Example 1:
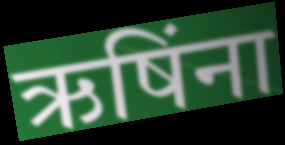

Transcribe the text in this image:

ऋषिंना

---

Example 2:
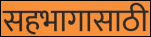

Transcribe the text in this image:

सहभागासाठी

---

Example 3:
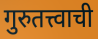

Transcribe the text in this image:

गुरुतत्त्वाची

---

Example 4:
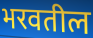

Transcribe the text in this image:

भरवतील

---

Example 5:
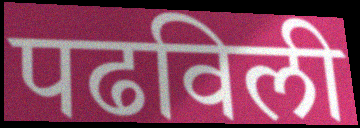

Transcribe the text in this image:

पढविली